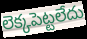
లెక్కపెట్టలేదు